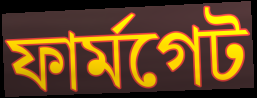
ফার্মগেট